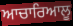
ਆਚਾਰਿਆਲੂ